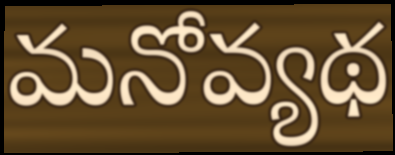
మనోవ్యథ